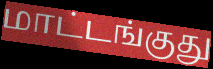
மாட்டங்குது